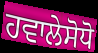
ਹਵਾਲੇਸੋਧੋ